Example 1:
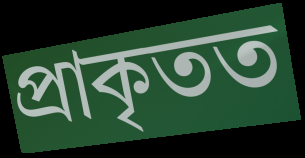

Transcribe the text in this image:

প্ৰাকৃতত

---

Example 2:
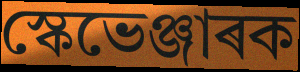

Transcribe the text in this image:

স্কেভেঞ্জাৰক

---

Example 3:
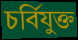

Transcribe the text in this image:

চৰ্বিযুক্ত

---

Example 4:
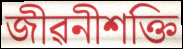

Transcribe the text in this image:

জীৱনীশক্তি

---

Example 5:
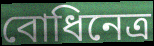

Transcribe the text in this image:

বোধিনেত্ৰ